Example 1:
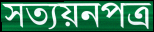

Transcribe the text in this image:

সত্যয়নপত্র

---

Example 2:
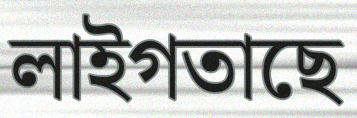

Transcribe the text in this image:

লাইগতাছে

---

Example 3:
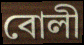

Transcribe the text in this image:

বোলী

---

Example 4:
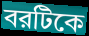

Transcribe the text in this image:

বরটিকে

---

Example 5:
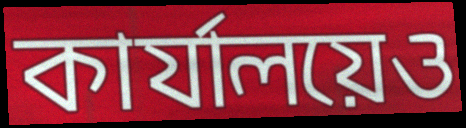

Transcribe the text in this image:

কার্যালয়েও